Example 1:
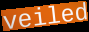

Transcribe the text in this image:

veiled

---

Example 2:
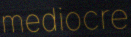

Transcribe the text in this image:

mediocre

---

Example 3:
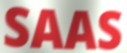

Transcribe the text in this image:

SAAS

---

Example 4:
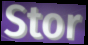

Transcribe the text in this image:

Stor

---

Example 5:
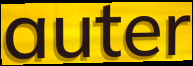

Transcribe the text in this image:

auter